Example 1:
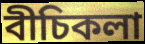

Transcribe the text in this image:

বীচিকলা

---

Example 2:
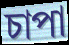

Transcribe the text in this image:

চাপা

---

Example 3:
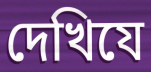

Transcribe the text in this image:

দেখিযে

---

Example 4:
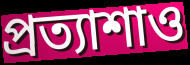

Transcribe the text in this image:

প্রত্যাশাও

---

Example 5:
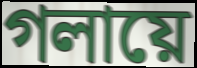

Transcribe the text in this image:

গলায়ে